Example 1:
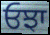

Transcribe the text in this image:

ਓਝਾ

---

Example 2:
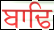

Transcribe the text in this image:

ਬਾਢਿ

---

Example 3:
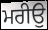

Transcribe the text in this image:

ਮਰੀਉ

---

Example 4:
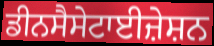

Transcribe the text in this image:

ਡੀਨਸੈਸੇਟਾਈਜ਼ੇਸ਼ਨ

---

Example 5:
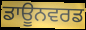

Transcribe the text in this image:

ਡਾਊਨਵਰਡ